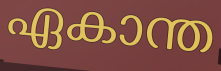
ഏകാന്ത